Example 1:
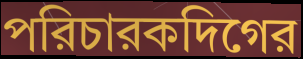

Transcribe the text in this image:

পরিচারকদিগের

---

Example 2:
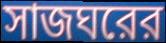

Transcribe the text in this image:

সাজঘরের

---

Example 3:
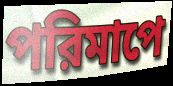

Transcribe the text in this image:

পরিমাপে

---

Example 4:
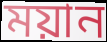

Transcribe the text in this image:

ময়ান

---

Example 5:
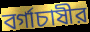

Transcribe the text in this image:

বর্গাচাষীর